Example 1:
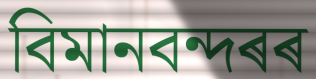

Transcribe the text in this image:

বিমানবন্দৰৰ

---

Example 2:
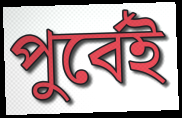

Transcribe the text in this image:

পুৰ্বেই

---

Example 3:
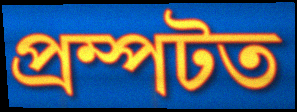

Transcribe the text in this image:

প্ৰম্পটত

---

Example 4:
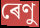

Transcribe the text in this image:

ৰেণু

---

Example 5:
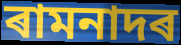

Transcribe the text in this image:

ৰামনাদৰ